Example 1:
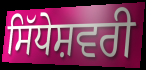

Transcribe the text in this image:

ਸਿੱਧੇਸ਼ਵਰੀ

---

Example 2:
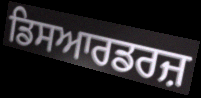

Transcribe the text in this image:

ਡਿਸਆਰਡਰਜ਼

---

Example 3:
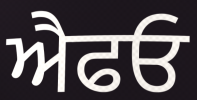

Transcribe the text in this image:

ਐਫਓ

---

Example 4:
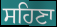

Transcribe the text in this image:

ਸਹਿਣਾ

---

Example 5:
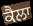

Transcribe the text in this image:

ਕੈਲਾ